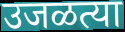
उजळत्या